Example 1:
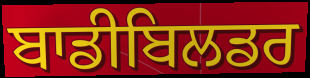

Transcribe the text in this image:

ਬਾਡੀਬਿਲਡਰ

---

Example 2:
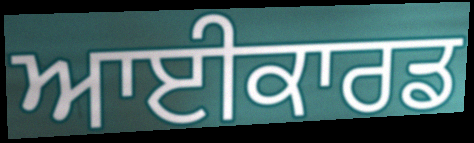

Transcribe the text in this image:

ਆਈਕਾਰਡ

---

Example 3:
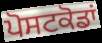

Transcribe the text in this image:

ਪੋਸਟਕੋਡਾਂ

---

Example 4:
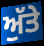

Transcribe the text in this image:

ਅੁੱਤੇ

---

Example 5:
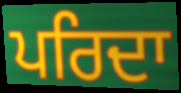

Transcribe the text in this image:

ਪਰਿਦਾ